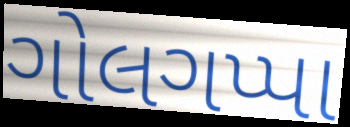
ગોલગપ્પા